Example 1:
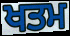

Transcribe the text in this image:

ਖਤਮ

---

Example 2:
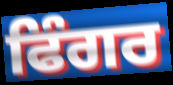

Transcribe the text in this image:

ਫਿੰਗਰ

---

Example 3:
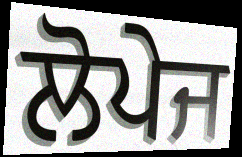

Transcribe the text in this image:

ਲੋਪੇਜ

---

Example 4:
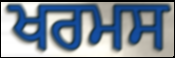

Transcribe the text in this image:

ਖਰਮਸ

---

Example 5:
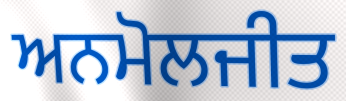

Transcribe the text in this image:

ਅਨਮੋਲਜੀਤ